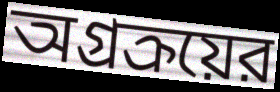
অগ্রক্রয়ের